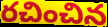
రచించిన